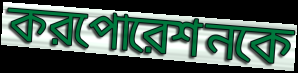
করপোরেশনকে